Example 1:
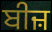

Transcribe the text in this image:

ਬੀਜ਼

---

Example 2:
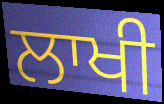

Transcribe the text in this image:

ਲਾਖੀ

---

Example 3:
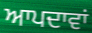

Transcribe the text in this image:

ਆਪਦਾਵਾਂ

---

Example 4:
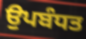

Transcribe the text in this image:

ਉਪਬੰਧਤ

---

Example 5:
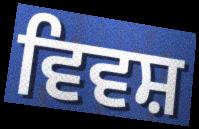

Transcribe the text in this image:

ਵਿਵਸ਼